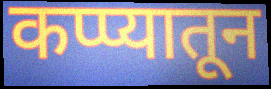
कप्प्यातून